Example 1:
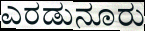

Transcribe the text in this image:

ಎರಡುನೂರು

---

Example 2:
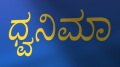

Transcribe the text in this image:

ಧ್ವನಿಮಾ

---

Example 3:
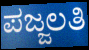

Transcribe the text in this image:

ಪಜ್ಜಲತಿ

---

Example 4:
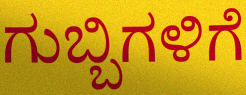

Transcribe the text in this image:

ಗುಬ್ಬಿಗಳಿಗೆ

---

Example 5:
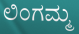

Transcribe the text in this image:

ಲಿಂಗಮ್ಮ